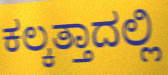
ಕಲ್ಕತ್ತಾದಲ್ಲಿ